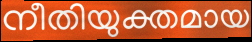
നീതിയുക്തമായ